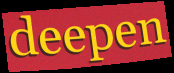
deepen